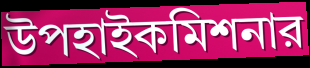
উপহাইকমিশনার